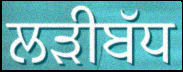
ਲੜੀਬੱਧ